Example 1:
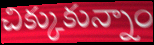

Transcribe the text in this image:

చిక్కుకున్నాం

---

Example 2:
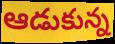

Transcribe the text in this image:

ఆడుకున్న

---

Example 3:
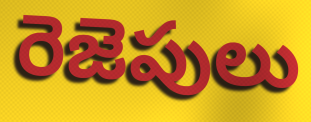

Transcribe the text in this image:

రెజెపులు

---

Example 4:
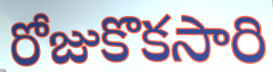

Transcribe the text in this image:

రోజుకొకసారి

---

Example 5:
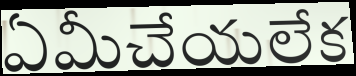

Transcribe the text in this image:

ఏమీచేయలేక